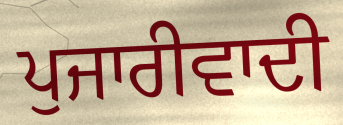
ਪੁਜਾਰੀਵਾਦੀ